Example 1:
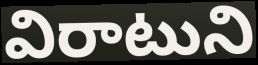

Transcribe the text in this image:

విరాటుని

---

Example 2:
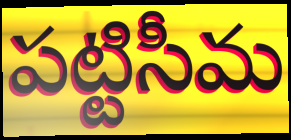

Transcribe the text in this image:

పట్టిసీమ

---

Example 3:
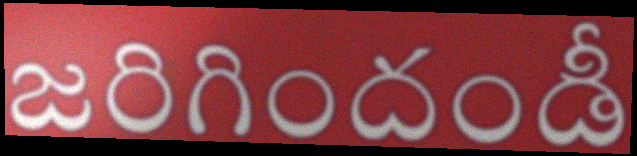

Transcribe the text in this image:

జరిగిందండీ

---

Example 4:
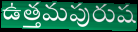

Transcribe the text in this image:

ఉత్తమపురుష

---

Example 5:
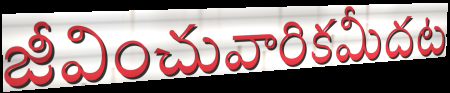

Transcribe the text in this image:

జీవించువారికమీదట